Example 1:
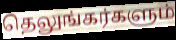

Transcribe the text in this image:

தெலுங்கர்களும்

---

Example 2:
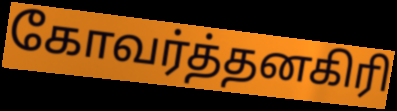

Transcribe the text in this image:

கோவர்த்தனகிரி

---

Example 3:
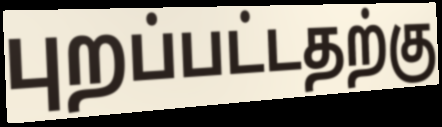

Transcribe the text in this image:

புறப்பட்டதற்கு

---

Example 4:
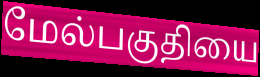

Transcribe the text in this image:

மேல்பகுதியை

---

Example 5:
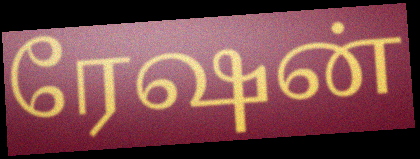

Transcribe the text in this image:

ரேஷன்